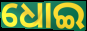
ଧୋଇ